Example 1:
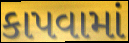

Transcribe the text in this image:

કાપવામાં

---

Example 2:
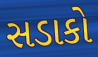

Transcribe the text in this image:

સડાકો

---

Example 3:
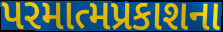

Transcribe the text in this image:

પરમાત્મપ્રકાશના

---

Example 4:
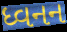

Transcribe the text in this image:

ધ્વનન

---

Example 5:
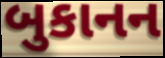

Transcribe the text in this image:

બુકાનન